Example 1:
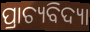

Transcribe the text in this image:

ପ୍ରାଚ୍ୟବିଦ୍ୟା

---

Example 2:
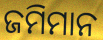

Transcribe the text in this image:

ଜମିମାନ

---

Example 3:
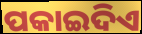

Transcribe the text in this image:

ପକାଇଦିଏ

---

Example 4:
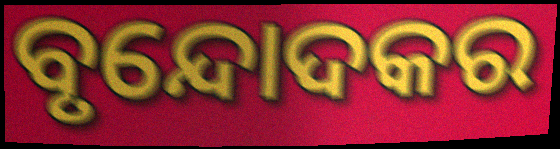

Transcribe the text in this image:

ବୃନ୍ଦୋଦକର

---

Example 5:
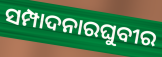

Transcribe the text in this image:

ସମ୍ପାଦନାରଘୁବୀର